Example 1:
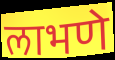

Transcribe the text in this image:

लाभणे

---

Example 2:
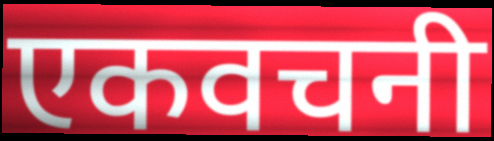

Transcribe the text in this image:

एकवचनी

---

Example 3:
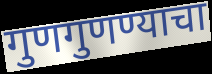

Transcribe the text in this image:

गुणगुणण्याचा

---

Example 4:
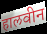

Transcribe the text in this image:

हालवीन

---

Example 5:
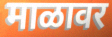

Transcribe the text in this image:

माळावर